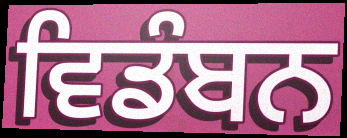
ਵਿਡੰਬਨ